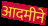
आदमीने